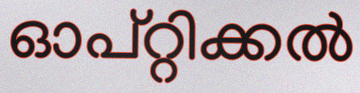
ഓപ്റ്റിക്കൽ